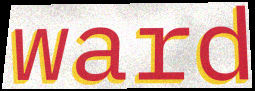
ward